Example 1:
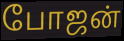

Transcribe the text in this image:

போஜன்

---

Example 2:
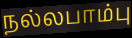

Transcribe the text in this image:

நல்லபாம்பு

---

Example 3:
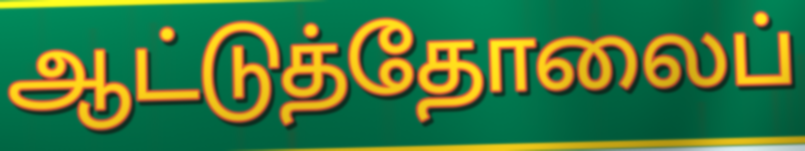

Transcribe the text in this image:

ஆட்டுத்தோலைப்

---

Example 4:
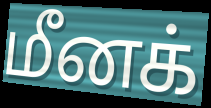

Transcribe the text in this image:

மீனக்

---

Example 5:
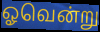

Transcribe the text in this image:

ஓவென்று